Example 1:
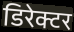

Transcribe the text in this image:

डिरेक्टर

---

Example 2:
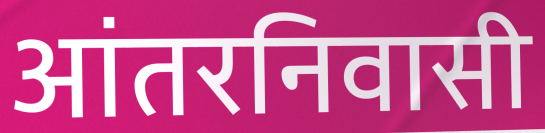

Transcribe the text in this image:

आंतरनिवासी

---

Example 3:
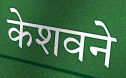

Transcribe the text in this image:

केशवने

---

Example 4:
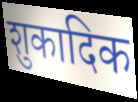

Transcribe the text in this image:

शुकादिक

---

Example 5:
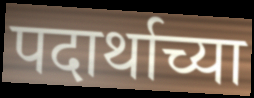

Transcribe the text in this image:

पदार्थाच्या